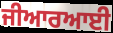
ਜੀਆਰਆਈ